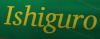
Ishiguro